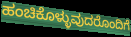
ಹಂಚಿಕೊಳ್ಳುವುದರೊಂದಿಗೆ